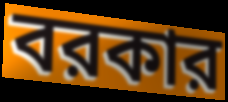
বরকার